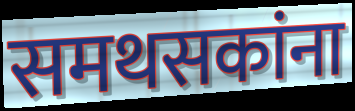
समथसकांना